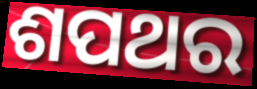
ଶପଥର